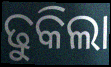
ଢୁକିଲା